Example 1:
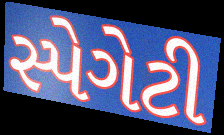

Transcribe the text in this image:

સ્પેગેટી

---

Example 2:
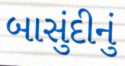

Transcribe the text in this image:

બાસુંદીનું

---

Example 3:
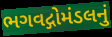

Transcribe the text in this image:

ભગવદ્ગોમંડલનું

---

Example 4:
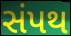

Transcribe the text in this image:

સંપથ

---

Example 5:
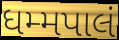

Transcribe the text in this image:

ધમ્મપાલં